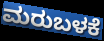
ಮರುಬಳಕೆ